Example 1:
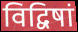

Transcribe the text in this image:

विद्विषां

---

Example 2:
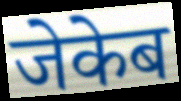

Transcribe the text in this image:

जेकेब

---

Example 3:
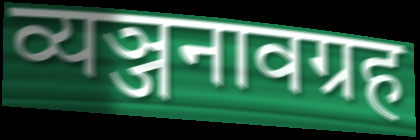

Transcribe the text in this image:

व्यञ्जनावग्रह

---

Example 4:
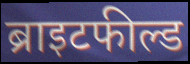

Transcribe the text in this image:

ब्राइटफील्ड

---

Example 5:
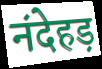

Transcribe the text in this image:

नंदेहड़